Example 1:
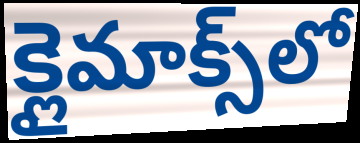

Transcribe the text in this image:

క్లైమాక్స్‌లో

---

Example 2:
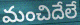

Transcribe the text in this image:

మంచిదేలే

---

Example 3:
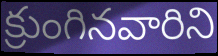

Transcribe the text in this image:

క్రుంగినవారిని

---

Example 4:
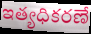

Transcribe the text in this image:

ఇత్యధికరణే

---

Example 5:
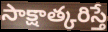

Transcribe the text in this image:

సాక్షాత్కరిస్తే